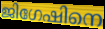
ജിഗേഷിനെ